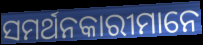
ସମର୍ଥନକାରୀମାନେ